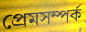
প্রেমসম্পর্ক